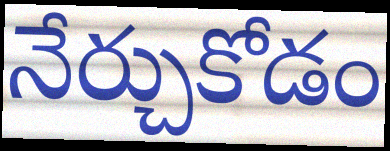
నేర్చుకోడం